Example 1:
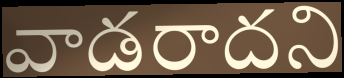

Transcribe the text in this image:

వాడరాదని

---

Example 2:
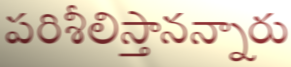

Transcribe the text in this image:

పరిశీలిస్తానన్నారు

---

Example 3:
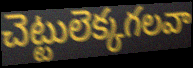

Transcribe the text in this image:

చెట్టులెక్కగలవా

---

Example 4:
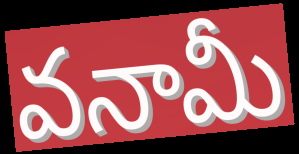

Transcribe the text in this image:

వనామీ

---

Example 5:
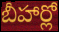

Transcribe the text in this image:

బీహార్లో